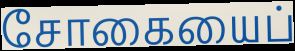
சோகையைப்